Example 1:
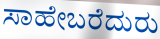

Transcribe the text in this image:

ಸಾಹೇಬರೆದುರು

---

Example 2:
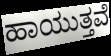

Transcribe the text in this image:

ಹಾಯುತ್ತವೆ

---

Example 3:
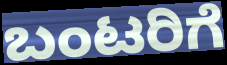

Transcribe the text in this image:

ಬಂಟರಿಗೆ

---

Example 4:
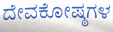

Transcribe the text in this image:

ದೇವಕೋಷ್ಠಗಳ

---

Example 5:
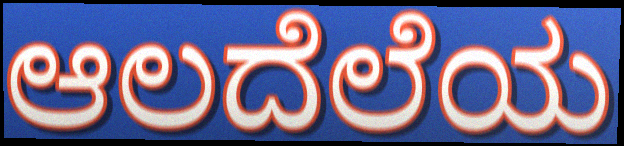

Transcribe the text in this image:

ಆಲದೆಲೆಯ